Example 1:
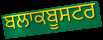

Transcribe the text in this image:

ਬਲਾਕਬੂਸਟਰ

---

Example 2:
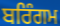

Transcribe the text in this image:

ਬਰਿੰਗਮ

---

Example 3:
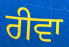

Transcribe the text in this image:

ਰੀਵਾ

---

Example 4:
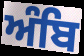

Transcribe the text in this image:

ਅੰਬਿ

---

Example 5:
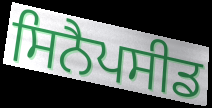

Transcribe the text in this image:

ਸਿਨੈਪਸੀਡ